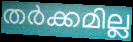
തർക്കമില്ല